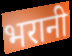
भरानी